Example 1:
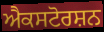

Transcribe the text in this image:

ਐਕਸਟੋਰਸ਼ਨ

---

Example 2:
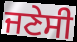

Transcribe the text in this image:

ਜਣੇਸੀ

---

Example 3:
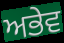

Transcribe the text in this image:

ਅਭੇਵ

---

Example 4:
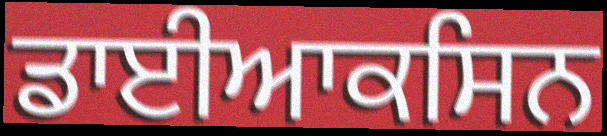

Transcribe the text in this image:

ਡਾਈਆਕਸਿਨ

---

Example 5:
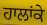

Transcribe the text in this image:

ਹਾਲਾਂਕੇ